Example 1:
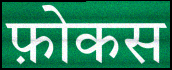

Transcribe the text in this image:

फ़ोकस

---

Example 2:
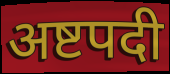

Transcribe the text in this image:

अष्टपदी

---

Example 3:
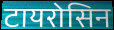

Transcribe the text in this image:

टायरोसिन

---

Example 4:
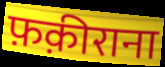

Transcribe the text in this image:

फ़क़ीराना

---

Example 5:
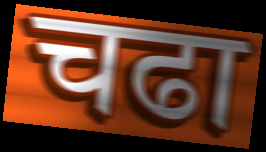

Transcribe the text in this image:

चढा